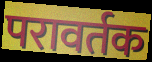
परावर्तक